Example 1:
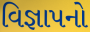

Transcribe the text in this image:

વિજ્ઞાપનો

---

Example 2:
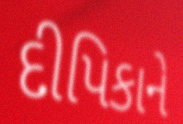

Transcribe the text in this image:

દીપિકાને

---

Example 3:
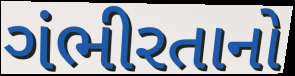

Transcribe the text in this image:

ગંભીરતાનો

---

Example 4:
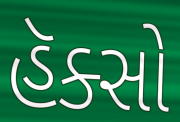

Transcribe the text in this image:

હૅક્સો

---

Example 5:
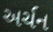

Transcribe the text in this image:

અર્ચન